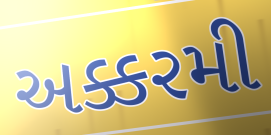
અક્કરમી